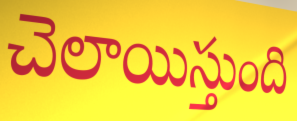
చెలాయిస్తుంది